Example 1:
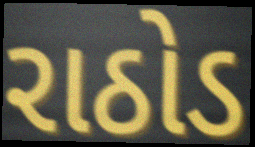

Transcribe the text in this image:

રાઠોડ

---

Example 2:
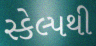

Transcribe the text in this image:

સ્કેલ્પથી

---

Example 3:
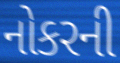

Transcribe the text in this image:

નોકરની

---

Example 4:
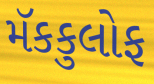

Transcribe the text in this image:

મૅકકુલોફ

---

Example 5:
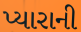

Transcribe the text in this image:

પ્યારાની